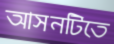
আসনটিতে